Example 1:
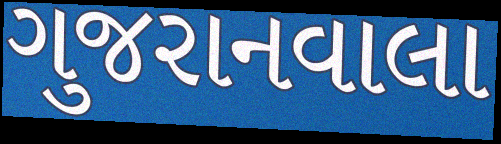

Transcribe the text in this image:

ગુજરાનવાલા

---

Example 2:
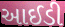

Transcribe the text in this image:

આઈડી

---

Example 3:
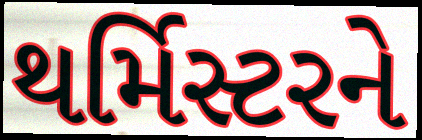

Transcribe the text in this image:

થર્મિસ્ટરને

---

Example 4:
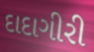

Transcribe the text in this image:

દાદાગીરી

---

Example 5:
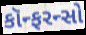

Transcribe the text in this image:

કૉન્ફરન્સો